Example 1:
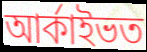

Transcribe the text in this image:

আৰ্কাইভত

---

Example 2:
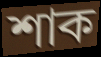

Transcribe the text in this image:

শাক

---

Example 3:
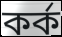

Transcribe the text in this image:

কৰ্ক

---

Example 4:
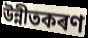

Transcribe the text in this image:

উন্নীতকৰণ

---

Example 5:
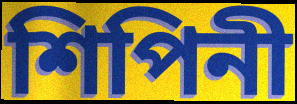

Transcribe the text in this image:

শিপিনী